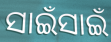
ସାଇଁସାଇଁ